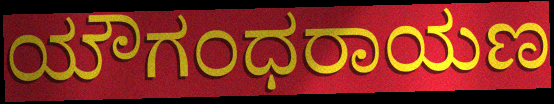
ಯೌಗಂಧರಾಯಣ